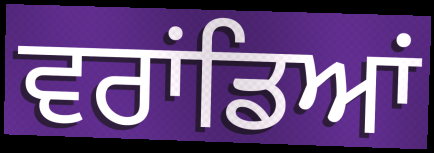
ਵਰਾਂਡਿਆਂ